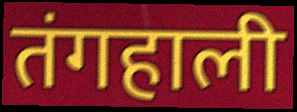
तंगहाली